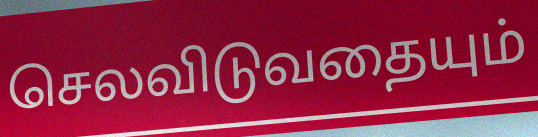
செலவிடுவதையும்